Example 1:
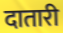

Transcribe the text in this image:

दातारी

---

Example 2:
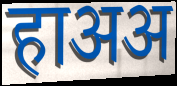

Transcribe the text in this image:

हाअअ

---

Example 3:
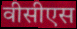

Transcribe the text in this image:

वीसीएस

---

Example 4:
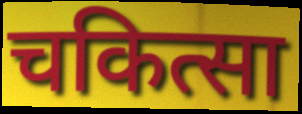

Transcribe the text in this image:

चकित्सा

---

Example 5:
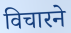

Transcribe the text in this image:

विचारने